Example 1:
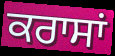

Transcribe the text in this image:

ਕਰਾਸਾਂ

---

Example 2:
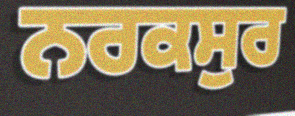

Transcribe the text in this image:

ਨਰਕਸੁਰ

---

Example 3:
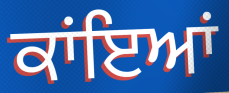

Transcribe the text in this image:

ਕਾਂਇਆਂ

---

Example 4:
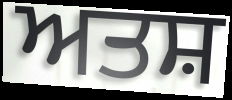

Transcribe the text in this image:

ਅਤਸ਼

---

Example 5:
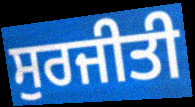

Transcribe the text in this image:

ਸੁਰਜੀਤੀ